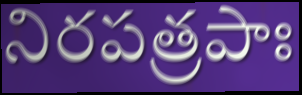
నిరపత్రపాః